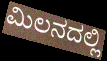
ಮಿಲನದಲ್ಲಿ